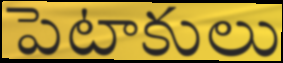
పెటాకులు